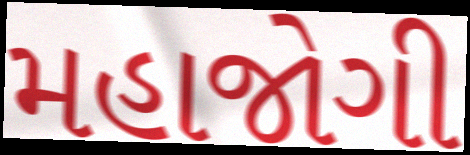
મહાજોગી